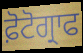
ਫ਼ੋਟੋਗ੍ਰਾਫ